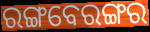
ରଙ୍ଗବେରଙ୍ଗର